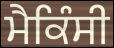
ਮੈਕਿੰਸੀ